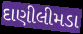
દાણીલીમડા